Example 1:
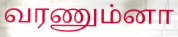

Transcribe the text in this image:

வரணும்னா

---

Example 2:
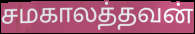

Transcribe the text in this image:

சமகாலத்தவன்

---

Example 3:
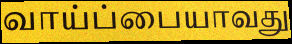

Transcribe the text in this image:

வாய்ப்பையாவது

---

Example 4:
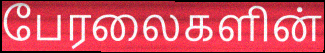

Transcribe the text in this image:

பேரலைகளின்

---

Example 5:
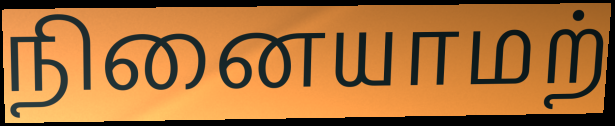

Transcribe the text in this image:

நினையாமற்